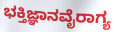
ಭಕ್ತಿಜ್ಞಾನವೈರಾಗ್ಯ